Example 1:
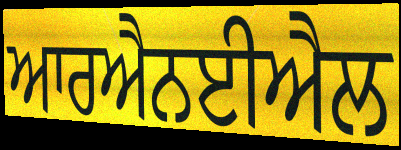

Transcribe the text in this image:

ਆਰਐਨਈਐਲ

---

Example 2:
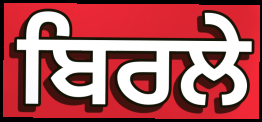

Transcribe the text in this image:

ਬਿਰਲੇ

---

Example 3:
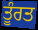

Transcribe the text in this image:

ਤੂੰਰਤ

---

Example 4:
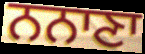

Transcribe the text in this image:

ਨਨਾਣਾ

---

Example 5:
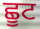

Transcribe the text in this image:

ਛੂਟ